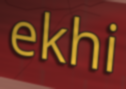
ekhi